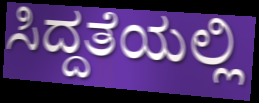
ಸಿದ್ದತೆಯಲ್ಲಿ